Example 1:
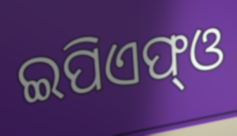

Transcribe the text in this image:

ଇପିଏଫ୍ଓ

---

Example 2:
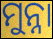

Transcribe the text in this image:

ମୁନ୍ନା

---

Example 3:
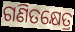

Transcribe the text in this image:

ଗଣିତକ୍ଷେତ୍ର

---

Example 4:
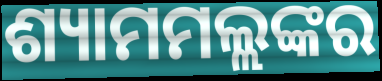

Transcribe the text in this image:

ଶ୍ୟାମମଲ୍ଲଙ୍କର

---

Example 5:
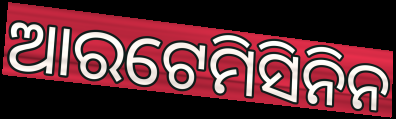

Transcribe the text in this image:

ଆରଟେମିସିନିନ